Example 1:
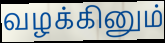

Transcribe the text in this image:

வழக்கினும்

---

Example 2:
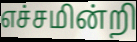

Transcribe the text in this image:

எச்சமின்றி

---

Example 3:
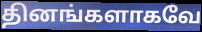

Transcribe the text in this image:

தினங்களாகவே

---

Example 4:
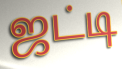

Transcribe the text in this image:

ஜட்டி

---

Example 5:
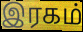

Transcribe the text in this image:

இரகம்